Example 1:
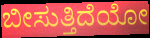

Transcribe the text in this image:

ಬೀಸುತ್ತಿದೆಯೋ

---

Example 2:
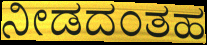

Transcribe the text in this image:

ನೀಡದಂತಹ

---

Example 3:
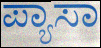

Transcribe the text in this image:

ಪ್ಯಾಸಾ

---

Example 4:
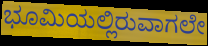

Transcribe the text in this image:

ಭೂಮಿಯಲ್ಲಿರುವಾಗಲೇ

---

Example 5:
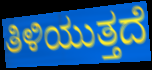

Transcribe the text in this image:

ತಿಳಿಯುತ್ತದೆ